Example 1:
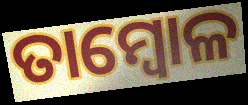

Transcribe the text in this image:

ତାମ୍ବୋଳ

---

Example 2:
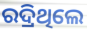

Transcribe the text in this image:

ରଦ୍ରିଥିଲେ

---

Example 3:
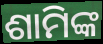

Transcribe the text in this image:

ଶାମିଙ୍କ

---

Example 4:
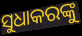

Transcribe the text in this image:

ସୁଧାକରଙ୍କୁ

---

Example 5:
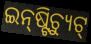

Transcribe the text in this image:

ଇନ୍‌ଷ୍ଟିଚ୍ୟୁଟ୍